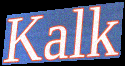
Kalk